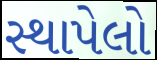
સ્થાપેલો